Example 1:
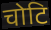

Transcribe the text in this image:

चोटि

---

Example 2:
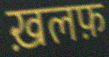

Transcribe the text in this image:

ख़लफ़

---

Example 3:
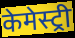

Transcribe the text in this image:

केमेस्ट्री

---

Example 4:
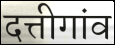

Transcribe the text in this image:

दत्तीगांव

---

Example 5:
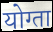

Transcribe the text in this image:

योग्ता